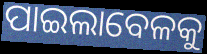
ପାଇଲାବେଳକୁ